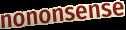
nononsense